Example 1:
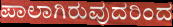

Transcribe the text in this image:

ಪಾಲಾಗಿರುವುದರಿಂದ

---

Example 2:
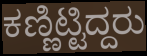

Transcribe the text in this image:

ಕಣ್ಣಿಟ್ಟಿದ್ದರು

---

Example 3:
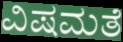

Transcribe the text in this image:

ವಿಷಮತೆ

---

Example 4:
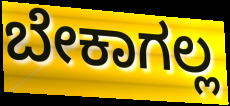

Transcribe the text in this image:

ಬೇಕಾಗಲ್ಲ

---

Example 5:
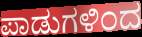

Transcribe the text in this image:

ಪಾಡುಗಳಿಂದ